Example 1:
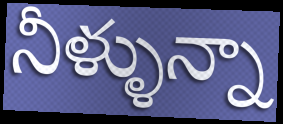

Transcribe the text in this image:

నీళ్ళున్నా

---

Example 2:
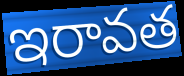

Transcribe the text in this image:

ఇరావత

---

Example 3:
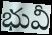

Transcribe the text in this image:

భువీ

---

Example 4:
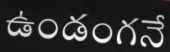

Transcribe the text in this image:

ఉండంగనే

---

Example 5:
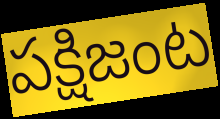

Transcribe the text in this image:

పక్షిజంట